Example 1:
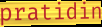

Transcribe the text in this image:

pratidin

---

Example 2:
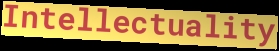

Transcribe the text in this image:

Intellectuality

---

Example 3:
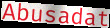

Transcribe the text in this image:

Abusadat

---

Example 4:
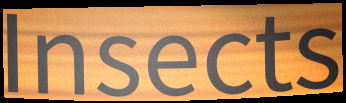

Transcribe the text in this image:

Insects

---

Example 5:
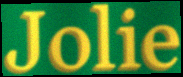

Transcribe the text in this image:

Jolie